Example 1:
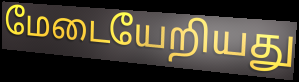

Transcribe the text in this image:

மேடையேறியது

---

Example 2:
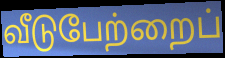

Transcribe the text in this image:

வீடுபேற்றைப்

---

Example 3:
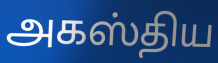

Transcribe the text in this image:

அகஸ்திய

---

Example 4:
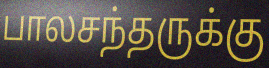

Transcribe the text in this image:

பாலசந்தருக்கு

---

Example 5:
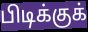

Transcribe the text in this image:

பிடிக்குக்